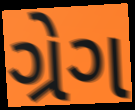
ગ્રેગ